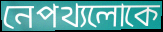
নেপথ্যলোকে